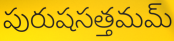
పురుషసత్తమమ్